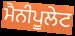
ਮੈਨੀਪੂਲੇਟ